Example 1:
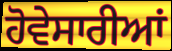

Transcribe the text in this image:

ਹੋਵੇਸਾਰੀਆਂ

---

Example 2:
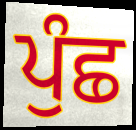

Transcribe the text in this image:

ਪੁੰਛ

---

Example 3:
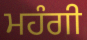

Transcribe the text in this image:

ਮਹੰਗੀ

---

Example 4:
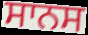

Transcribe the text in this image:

ਸਾਨਸ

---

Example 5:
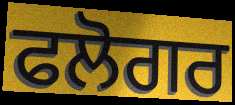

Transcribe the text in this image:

ਫਲੋਗਰ